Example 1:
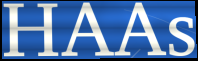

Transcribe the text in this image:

HAAs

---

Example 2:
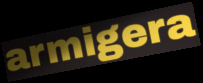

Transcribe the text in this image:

armigera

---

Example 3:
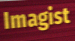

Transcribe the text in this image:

Imagist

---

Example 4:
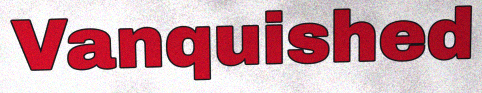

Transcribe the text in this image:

Vanquished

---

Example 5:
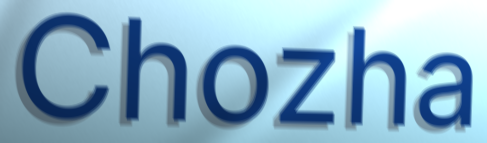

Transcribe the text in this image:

Chozha